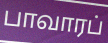
பாவாரப்